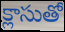
క్లాసుతో